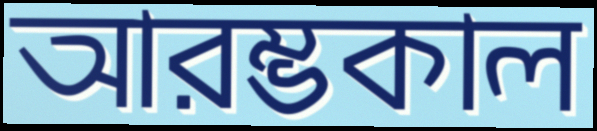
আরম্ভকাল